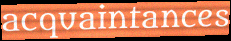
acquaintances